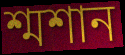
শ্মশান